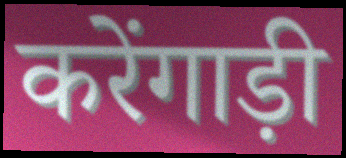
करेंगाड़ी